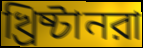
খ্রিষ্টানরা